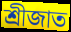
শ্রীজাত